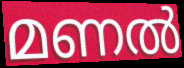
മണൽ